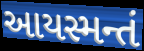
આયસ્મન્તં